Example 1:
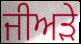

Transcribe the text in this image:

ਜੀਅੜੇ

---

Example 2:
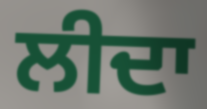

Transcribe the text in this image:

ਲੀਦਾ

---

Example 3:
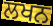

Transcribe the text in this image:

ਲਖਨ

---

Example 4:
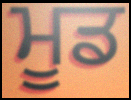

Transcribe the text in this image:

ਮੂਡ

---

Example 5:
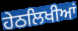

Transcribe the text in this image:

ਹੇਠਲਿਖੀਆਂ